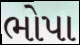
ભોપા